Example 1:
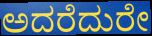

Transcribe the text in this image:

ಅದರೆದುರೇ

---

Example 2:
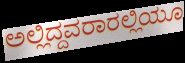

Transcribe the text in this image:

ಅಲ್ಲಿದ್ದವರಾರಲ್ಲಿಯೂ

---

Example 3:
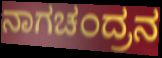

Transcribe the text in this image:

ನಾಗಚಂದ್ರನ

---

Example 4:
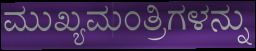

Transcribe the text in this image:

ಮುಖ್ಯಮಂತ್ರಿಗಳನ್ನು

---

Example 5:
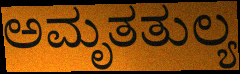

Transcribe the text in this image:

ಅಮೃತತುಲ್ಯ